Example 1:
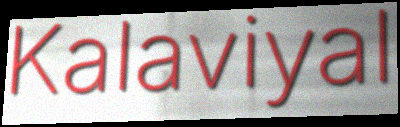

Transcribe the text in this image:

Kalaviyal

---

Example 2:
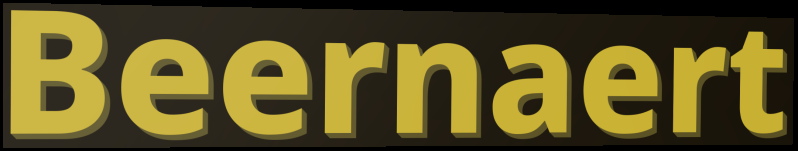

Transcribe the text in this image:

Beernaert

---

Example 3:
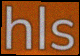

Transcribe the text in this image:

hls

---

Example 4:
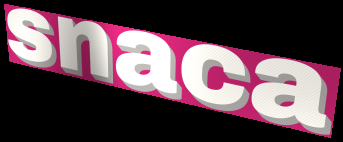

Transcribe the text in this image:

snaca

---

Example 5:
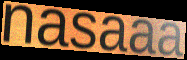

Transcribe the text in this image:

nasaaa